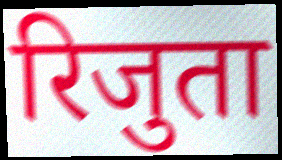
रिजुता